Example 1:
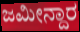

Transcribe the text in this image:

ಜಮೀನ್ದಾರ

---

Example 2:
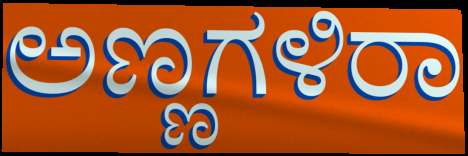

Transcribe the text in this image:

ಅಣ್ಣಗಳಿರಾ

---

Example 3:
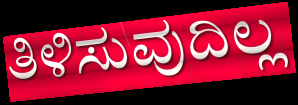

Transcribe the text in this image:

ತಿಳಿಸುವುದಿಲ್ಲ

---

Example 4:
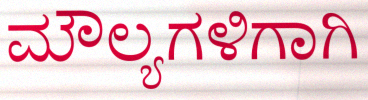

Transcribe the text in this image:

ಮೌಲ್ಯಗಳಿಗಾಗಿ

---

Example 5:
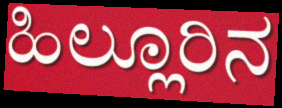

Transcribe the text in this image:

ಹಿಲ್ಲೂರಿನ